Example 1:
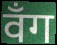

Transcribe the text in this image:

वँग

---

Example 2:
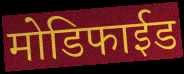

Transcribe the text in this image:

मोडिफाईड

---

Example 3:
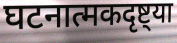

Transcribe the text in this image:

घटनात्मकदृष्ट्या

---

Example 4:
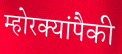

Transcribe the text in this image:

म्होरक्यांपैकी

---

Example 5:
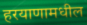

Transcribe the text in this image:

हरयाणामधील